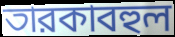
তারকাবহুল